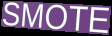
SMOTE